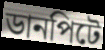
ডানপিটে